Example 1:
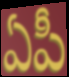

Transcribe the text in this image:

ఏపీ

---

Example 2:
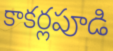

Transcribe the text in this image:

కాకర్లపూడి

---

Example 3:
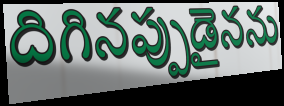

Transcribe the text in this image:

దిగినప్పుడైనను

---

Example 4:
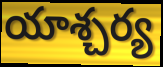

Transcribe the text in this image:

యాశ్చర్య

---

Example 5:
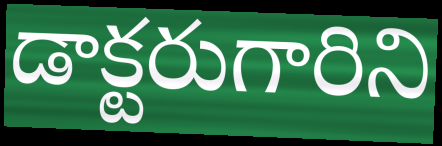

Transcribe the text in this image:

డాక్టరుగారిని